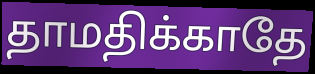
தாமதிக்காதே